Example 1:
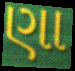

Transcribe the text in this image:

ણા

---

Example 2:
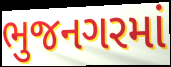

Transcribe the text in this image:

ભુજનગરમાં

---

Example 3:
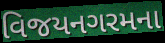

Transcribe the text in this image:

વિજયનગરમના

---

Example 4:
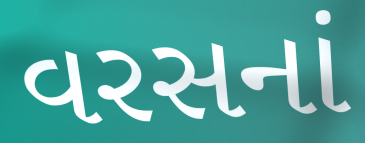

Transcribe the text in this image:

વરસનાં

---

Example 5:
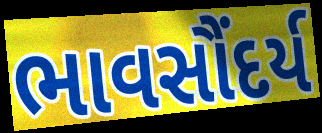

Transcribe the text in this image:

ભાવસૌંદર્ય